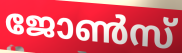
ജോൺസ്